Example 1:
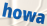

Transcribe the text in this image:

howa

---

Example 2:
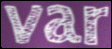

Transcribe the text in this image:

var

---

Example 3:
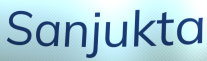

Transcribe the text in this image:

Sanjukta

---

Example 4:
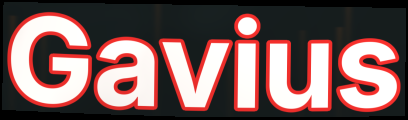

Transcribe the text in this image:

Gavius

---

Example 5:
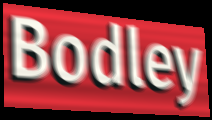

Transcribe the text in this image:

Bodley